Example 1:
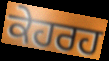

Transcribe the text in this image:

ਕੇਹਰਹ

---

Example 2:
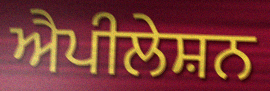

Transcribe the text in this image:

ਐਪੀਲੇਸ਼ਨ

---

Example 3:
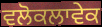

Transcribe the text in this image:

ਵਲੋਕਲਾਵੇਕ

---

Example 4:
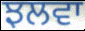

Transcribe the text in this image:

ਝਲਵਾ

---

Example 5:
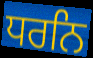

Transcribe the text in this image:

ਧਰਨਿ